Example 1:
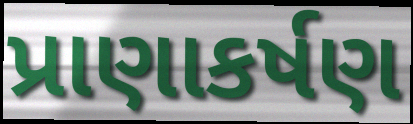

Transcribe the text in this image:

પ્રાણાકર્ષણ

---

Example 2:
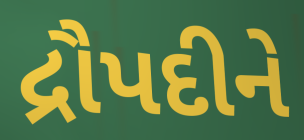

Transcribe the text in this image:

દ્રૌપદીને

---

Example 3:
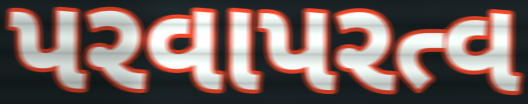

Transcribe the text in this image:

પરવાપરત્વ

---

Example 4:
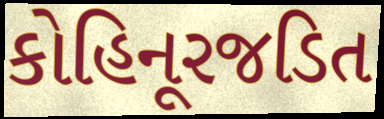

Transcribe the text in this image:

કોહિનૂરજડિત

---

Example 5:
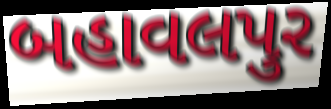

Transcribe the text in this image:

બહાવલપુર